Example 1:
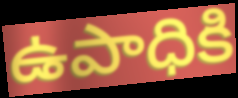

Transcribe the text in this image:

ఉపాధికి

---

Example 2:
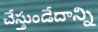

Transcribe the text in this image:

చేస్తుండేదాన్ని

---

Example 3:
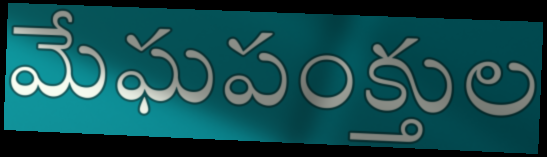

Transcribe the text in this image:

మేఘపంక్తుల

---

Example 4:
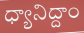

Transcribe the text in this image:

ధ్యానిద్దాం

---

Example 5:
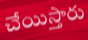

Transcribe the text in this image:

చేయిస్తారు